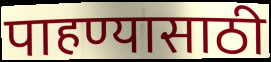
पाहण्यासाठी